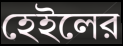
হেইলের